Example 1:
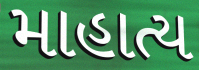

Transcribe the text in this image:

માહાત્ય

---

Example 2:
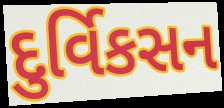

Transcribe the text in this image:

દુર્વિકસન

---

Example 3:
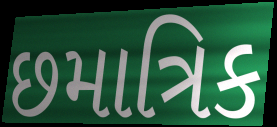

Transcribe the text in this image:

છમાત્રિક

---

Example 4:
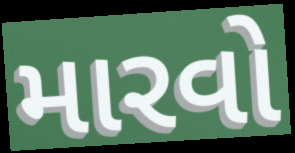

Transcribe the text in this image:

મારવો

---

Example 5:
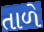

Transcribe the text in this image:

તાળે